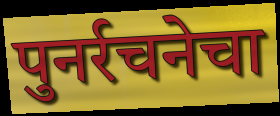
पुनर्रचनेचा